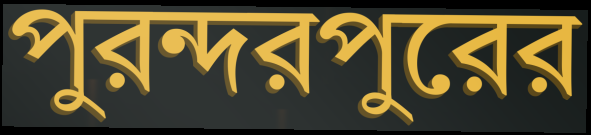
পুরন্দরপুরের